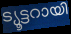
ട്യൂട്ടറായി